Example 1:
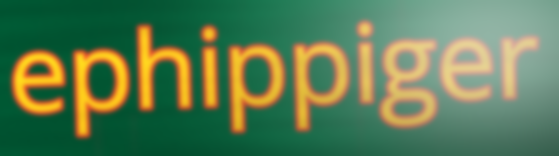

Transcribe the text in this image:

ephippiger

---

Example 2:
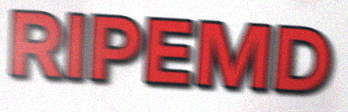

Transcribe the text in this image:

RIPEMD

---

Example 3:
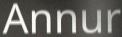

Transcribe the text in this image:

Annur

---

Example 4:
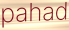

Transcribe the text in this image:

pahad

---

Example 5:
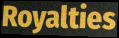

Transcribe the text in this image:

Royalties